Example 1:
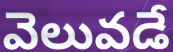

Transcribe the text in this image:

వెలువడే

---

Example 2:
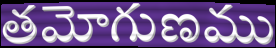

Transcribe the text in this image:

తమోగుణము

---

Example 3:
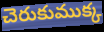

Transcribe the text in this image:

చెరుకుముక్క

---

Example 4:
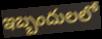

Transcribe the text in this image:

ఇబ్బందులలో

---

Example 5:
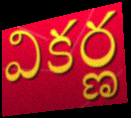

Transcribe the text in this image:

వికర్ణ